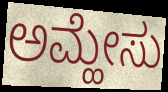
ಅಮ್ಹೇಸು